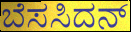
ಬೆಸಸಿದನ್